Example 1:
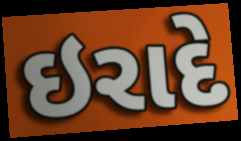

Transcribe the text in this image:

ઇરાદે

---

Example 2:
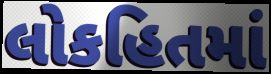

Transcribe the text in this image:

લોકહિતમાં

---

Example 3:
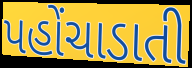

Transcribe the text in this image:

પહોંચાડાતી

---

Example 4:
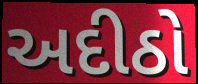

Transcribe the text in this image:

અદીઠો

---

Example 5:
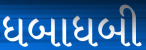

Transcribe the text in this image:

ધબાધબી